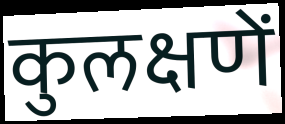
कुलक्षणें